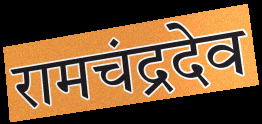
रामचंद्रदेव